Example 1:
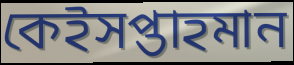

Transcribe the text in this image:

কেইসপ্তাহমান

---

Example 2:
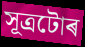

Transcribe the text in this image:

সূত্ৰটোৰ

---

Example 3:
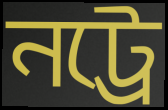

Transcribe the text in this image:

নট্ৰে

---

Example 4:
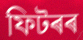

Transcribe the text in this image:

ফিটৰৰ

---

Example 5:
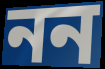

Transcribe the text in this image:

নন